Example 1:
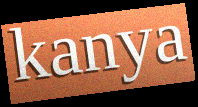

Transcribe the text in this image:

kanya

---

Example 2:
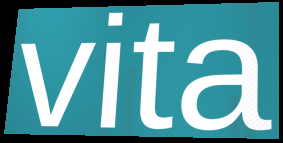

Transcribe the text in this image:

vita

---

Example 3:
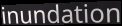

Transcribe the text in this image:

inundation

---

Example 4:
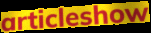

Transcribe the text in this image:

articleshow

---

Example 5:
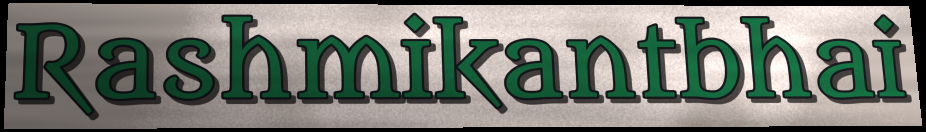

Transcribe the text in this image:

Rashmikantbhai